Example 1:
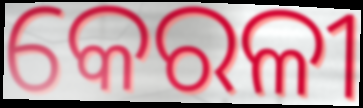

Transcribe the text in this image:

କେରଳୀ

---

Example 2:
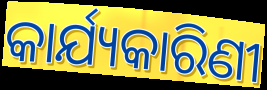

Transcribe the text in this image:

କାର୍ଯ୍ୟକାରିଣୀ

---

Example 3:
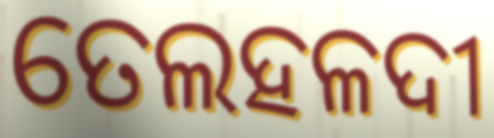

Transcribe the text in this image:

ତେଲହଳଦୀ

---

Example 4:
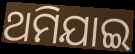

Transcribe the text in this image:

ଥମିଯାଇ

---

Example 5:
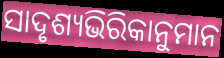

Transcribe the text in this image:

ସାଦୃଶ୍ଯଭିରିକାନୁମାନ